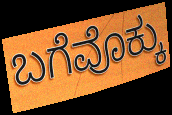
ಬಗೆವೊಕ್ಕು